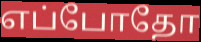
எப்போதோ